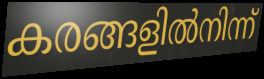
കരങ്ങളിൽനിന്ന്